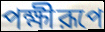
পক্ষীরূপে